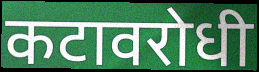
कटावरोधी